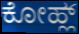
ಕೋಹ್ಲ್